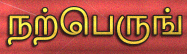
நற்பெருங்